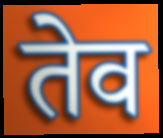
तेव